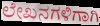
ಲೇಖನಗಳಿಗಾಗಿ